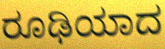
ರೂಢಿಯಾದ